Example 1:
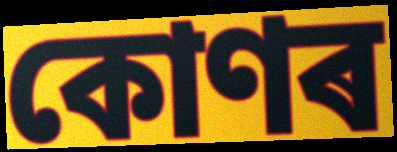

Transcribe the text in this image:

কোণৰ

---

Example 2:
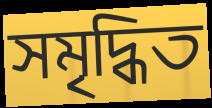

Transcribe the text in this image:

সমৃদ্ধিত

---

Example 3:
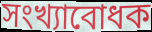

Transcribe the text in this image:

সংখ্যাবোধক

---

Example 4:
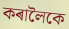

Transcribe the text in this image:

কৰালৈকে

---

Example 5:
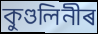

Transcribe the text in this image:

কুণ্ডলিনীৰ